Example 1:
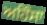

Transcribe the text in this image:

ਅਹਿੰਸਾ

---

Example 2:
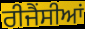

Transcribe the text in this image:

ਰੀਜੈਂਸੀਆਂ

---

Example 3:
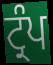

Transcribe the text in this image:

ਟ੍ਰੰਪ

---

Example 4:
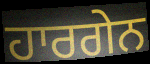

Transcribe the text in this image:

ਹਾਰਗੇਨ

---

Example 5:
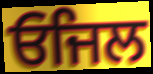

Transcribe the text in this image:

ਓਜਿਲ